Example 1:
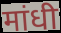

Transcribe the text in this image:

मांधी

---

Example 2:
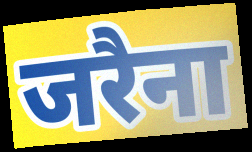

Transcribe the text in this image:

जरैना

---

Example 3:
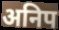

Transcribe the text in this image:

अनिप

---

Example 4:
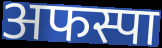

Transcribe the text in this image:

अफस्पा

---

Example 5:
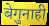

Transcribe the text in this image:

बेगुनाही